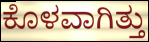
ಕೊಳವಾಗಿತ್ತು